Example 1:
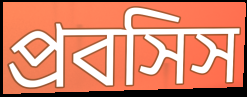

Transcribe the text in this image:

প্রবসিস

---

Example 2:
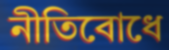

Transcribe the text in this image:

নীতিবোধে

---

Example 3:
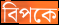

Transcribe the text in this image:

বিপকে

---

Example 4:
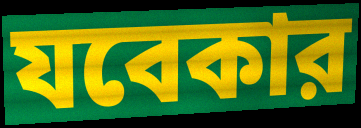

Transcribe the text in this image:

যবেকার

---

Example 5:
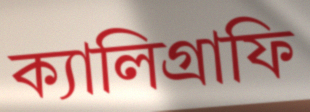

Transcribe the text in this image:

ক্যালিগ্রাফি